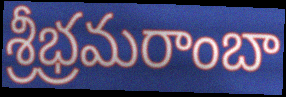
శ్రీభ్రమరాంబా